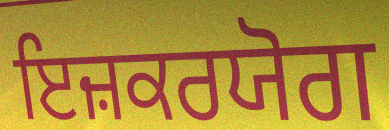
ਇਜ਼ਕਰਯੋਗ